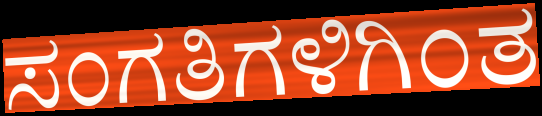
ಸಂಗತಿಗಳಿಗಿಂತ